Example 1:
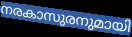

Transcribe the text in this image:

നരകാസുരനുമായി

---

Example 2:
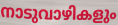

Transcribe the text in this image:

നാടുവാഴികളും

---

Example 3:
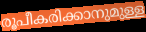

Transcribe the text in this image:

രൂപീകരിക്കാനുമുള്ള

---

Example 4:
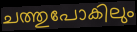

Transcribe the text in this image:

ചത്തുപോകിലും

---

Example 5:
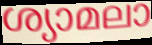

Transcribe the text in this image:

ശ്യാമലാ